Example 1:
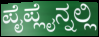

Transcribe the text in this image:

ಪೈಪ್ಲೈನ್ನಲ್ಲಿ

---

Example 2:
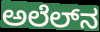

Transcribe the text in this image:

ಅಲೆಲ್‌ನ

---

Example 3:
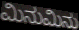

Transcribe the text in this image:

ಮಿನುಮಿನು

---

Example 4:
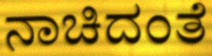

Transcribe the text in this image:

ನಾಚಿದಂತೆ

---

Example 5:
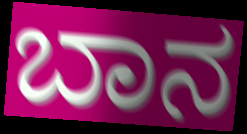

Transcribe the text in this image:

ಬಾನ